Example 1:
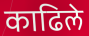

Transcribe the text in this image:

काढिले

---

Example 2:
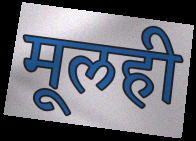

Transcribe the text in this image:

मूलही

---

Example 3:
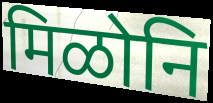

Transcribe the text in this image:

मिळोनि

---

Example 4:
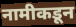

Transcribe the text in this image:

नामीकडून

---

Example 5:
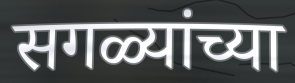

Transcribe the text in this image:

सगळ्यांच्या